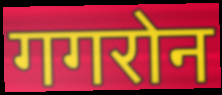
गगरोन